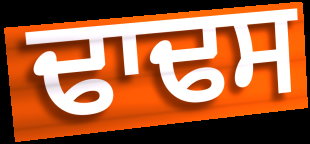
ਢਾਢਸ